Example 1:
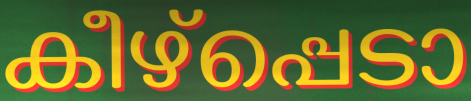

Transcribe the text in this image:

കീഴ്പ്പെടാ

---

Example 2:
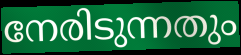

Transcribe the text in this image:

നേരിടുന്നതും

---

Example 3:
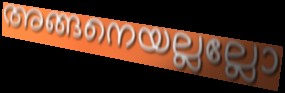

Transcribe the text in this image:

അങ്ങനെയല്ലല്ലോ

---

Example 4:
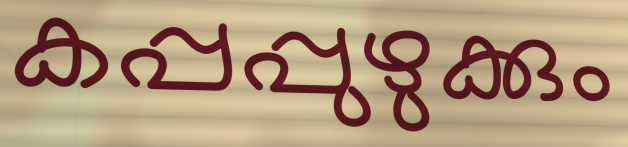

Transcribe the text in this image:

കപ്പപ്പുഴുക്കും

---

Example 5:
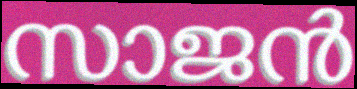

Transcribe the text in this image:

സാജൻ